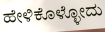
ಹೇಳಿಕೊಳ್ಳೋದು